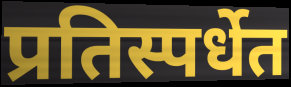
प्रतिस्पर्धेत